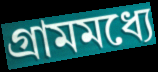
গ্রামমধ্যে